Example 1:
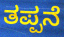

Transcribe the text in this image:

ತಪ್ಪನೆ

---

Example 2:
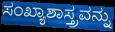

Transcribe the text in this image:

ಸಂಖ್ಯಾಶಾಸ್ತ್ರವನ್ನು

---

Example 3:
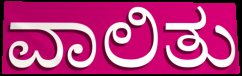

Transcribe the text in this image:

ವಾಲಿತು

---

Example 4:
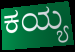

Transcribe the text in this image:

ಕಯ್ಯ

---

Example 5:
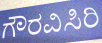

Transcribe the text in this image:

ಗೌರವಿಸಿರಿ